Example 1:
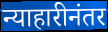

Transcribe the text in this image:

न्याहारीनंतर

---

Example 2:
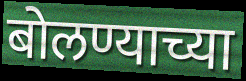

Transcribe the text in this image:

बोलण्याच्या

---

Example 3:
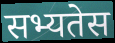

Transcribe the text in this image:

सभ्यतेस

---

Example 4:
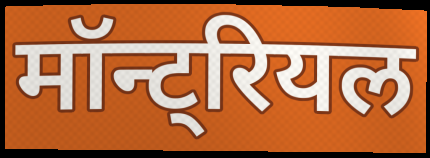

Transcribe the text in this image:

मॉन्ट्रियल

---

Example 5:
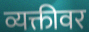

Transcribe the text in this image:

व्यक्तीवर